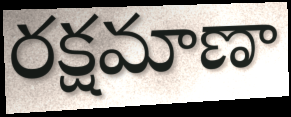
రక్షమాణా